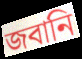
জবানি